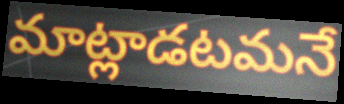
మాట్లాడటమనే